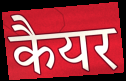
कैयर